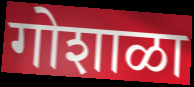
गोशाळा